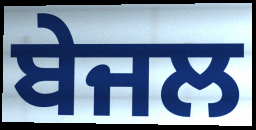
ਬੇਜਲ